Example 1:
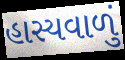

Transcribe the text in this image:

હાસ્યવાળું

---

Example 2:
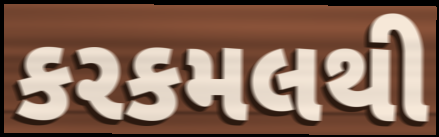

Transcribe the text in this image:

કરકમલથી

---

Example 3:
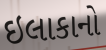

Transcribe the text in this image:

ઇલાકાનો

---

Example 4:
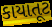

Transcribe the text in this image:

કાયાતૂટ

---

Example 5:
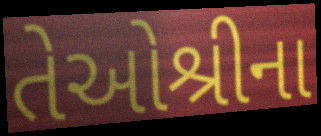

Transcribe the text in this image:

તેઓશ્રીના